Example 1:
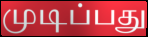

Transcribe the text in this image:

முடிப்பது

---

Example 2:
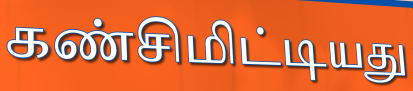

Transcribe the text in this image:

கண்சிமிட்டியது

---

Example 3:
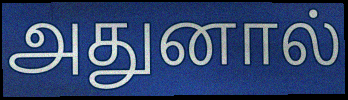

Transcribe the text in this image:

அதுனால்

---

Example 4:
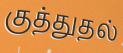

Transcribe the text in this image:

குத்துதல்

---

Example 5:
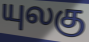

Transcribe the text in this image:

யுலகு